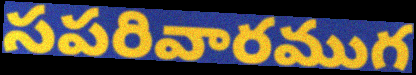
సపరివారముగ